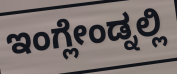
ಇಂಗ್ಲೇಂಡ್ನಲ್ಲಿ